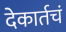
देकार्तचं